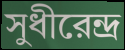
সুধীরেন্দ্র